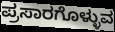
ಪ್ರಸಾರಗೊಳ್ಳುವ